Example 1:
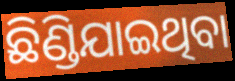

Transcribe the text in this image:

ଛିଣ୍ଡିଯାଇଥିବା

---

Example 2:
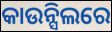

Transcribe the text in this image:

କାଉନ୍ସିଲରେ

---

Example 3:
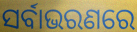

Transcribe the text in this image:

ସର୍ବାଭରଣରେ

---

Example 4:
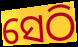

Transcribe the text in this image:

ସେଠି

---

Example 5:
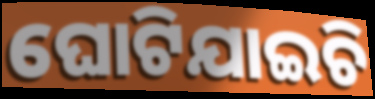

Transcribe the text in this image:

ଘୋଟିଯାଇଚି